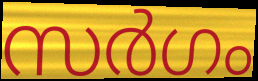
സർഗം